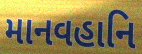
માનવહાનિ